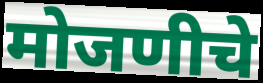
मोजणीचे